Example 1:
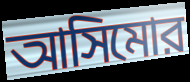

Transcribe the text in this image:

আসিমোর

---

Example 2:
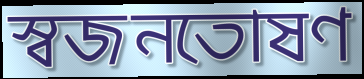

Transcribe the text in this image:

স্বজনতোষণ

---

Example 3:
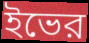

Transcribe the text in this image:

ইভের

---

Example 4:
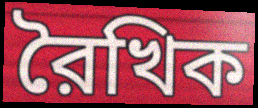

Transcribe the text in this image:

রৈখিক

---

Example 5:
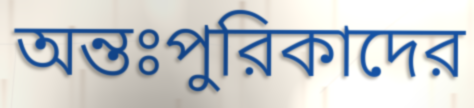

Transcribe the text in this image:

অন্তঃপুরিকাদের